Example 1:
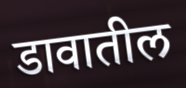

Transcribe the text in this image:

डावातील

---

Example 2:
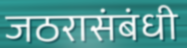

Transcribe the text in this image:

जठरासंबंधी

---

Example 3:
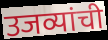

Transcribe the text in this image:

उजव्यांची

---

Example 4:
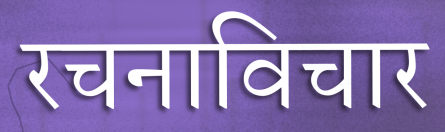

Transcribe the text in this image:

रचनाविचार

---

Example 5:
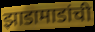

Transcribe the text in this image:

झाडामाडांची